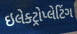
ઇલેક્ટ્રોપ્લેટિંગ